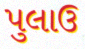
પુલાઉ